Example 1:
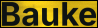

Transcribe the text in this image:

Bauke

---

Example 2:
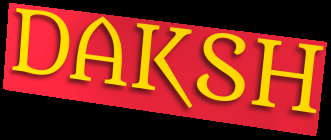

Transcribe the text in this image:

DAKSH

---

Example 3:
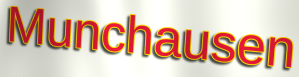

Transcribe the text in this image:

Munchausen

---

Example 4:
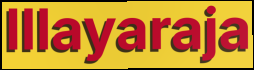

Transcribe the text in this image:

Illayaraja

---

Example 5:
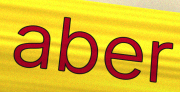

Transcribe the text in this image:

aber